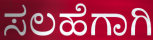
ಸಲಹೆಗಾಗಿ